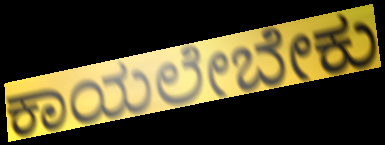
ಕಾಯಲೇಬೇಕು